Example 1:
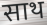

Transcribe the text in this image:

साथ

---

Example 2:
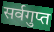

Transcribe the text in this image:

सर्वगुप्त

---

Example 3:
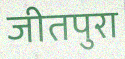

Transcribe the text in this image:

जीतपुरा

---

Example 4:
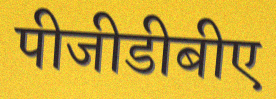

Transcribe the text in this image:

पीजीडीबीए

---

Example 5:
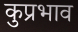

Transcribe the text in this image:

कुप्रभाव